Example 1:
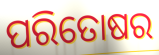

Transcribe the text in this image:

ପରିତୋଷର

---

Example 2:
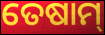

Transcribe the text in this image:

ତେଷାମ୍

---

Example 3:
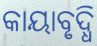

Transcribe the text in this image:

କାୟାବୃଦ୍ଧି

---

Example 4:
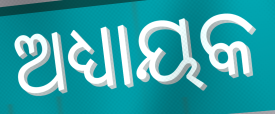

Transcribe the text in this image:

ଅଧ୍ୟାୟକ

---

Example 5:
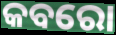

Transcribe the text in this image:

କବରୋ